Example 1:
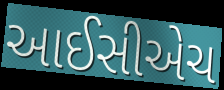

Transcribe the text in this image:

આઈસીએચ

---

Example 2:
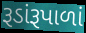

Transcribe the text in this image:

રૂડાંરૂપાળાં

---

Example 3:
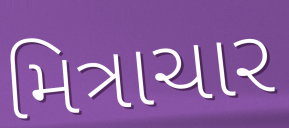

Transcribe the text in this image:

મિત્રાચાર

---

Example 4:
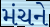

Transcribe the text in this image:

મંચને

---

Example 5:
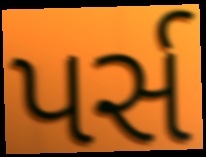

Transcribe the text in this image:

પર્સ